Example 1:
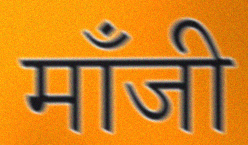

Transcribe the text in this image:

मॉंजी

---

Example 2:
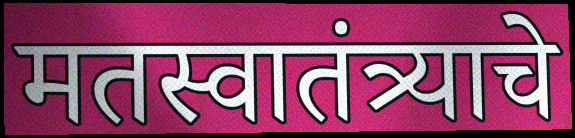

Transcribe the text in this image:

मतस्वातंत्र्याचे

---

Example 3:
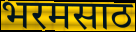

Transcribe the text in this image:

भरमसाठ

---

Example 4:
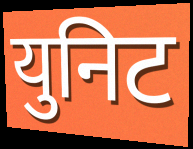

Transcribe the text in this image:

युनिट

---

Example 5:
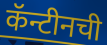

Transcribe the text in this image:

कॅन्टीनची